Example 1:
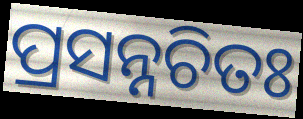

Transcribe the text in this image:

ପ୍ରସନ୍ନଚିତଃ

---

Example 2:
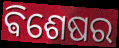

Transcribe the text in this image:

ଵିଶେଷର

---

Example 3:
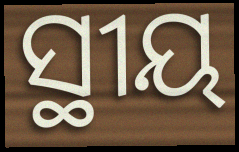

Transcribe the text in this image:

ସ୍ଥୀୟ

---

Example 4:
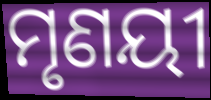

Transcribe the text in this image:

ମୃଣୟୀ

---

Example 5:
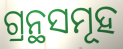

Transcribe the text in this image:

ଗ୍ରନ୍ଥସମୂହ